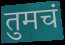
तुमचं